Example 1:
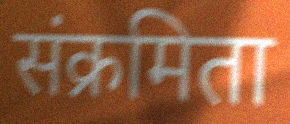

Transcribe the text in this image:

संक्रमिता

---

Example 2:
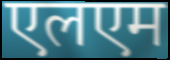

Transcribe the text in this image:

एलएम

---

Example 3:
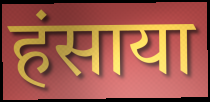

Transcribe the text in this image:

हंसाया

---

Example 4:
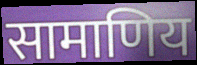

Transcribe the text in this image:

सामाणिय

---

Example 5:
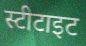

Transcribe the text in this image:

स्टीटाइट